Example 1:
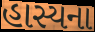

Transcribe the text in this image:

હાસ્યના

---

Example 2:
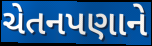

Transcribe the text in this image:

ચેતનપણાને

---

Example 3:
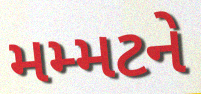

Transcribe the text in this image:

મમ્મટને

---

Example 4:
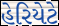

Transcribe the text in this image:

હેરિયેટે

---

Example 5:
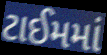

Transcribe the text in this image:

ટાઈમમાં